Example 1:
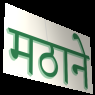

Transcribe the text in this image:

मठाने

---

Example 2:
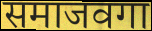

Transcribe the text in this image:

समाजवगा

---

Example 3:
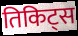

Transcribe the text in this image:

तिकिट्स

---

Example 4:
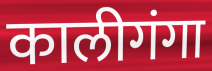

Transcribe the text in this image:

कालीगंगा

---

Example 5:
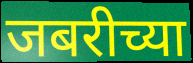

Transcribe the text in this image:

जबरीच्या